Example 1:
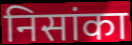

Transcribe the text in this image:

निसांका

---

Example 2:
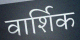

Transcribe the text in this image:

वार्शिक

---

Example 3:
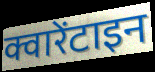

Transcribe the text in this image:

क्वारेंटाइन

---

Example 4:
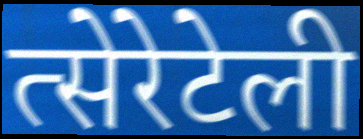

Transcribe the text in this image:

त्सेरेटेली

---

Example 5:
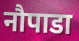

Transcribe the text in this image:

नौपाडा